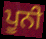
ਪੂਨੀ